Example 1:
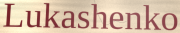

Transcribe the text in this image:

Lukashenko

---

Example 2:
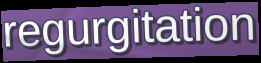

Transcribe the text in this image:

regurgitation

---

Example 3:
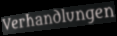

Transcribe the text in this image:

Verhandlungen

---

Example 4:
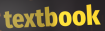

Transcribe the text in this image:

textbook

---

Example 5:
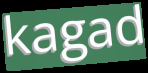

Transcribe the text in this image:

kagad